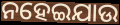
ନହେଇଯାଉ